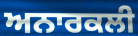
ਅਨਾਰਕਲੀ